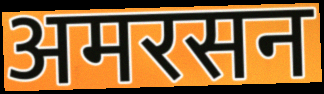
अमरसन